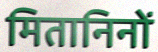
मितानिनों